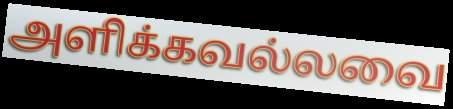
அளிக்கவல்லவை